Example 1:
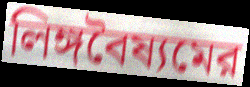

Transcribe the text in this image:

লিঙ্গবৈষ্যমের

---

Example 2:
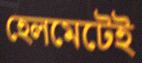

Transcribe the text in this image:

হেলমেটেই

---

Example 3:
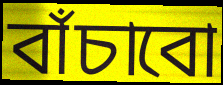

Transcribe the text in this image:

বাঁচাবো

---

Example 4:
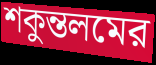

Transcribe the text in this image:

শকুন্তলমের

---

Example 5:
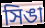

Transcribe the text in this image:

সিঙা